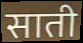
साती